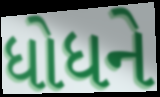
ધોધને